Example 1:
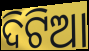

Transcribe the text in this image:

ଦିଟିଆ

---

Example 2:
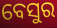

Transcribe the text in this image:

ବେସୁର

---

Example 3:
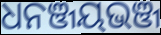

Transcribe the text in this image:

ଧନଞ୍ଜୟଭଞ୍ଜ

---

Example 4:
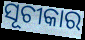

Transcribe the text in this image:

ସୂଚୀକାର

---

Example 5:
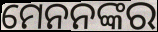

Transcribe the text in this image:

ମେନନଙ୍କର